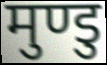
मुण्डु